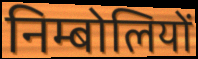
निम्बोलियों